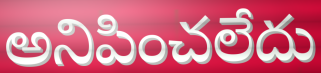
అనిపించలేదు